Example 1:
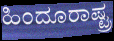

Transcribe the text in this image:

ಹಿಂದೂರಾಷ್ಟ್ರ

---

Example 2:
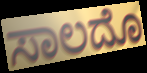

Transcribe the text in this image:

ಸಾಲದೊ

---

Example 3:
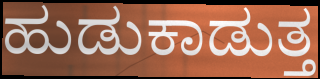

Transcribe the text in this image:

ಹುಡುಕಾಡುತ್ತ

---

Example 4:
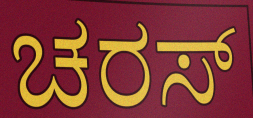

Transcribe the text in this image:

ಚರಸ್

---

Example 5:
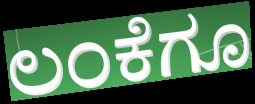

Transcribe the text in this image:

ಲಂಕೆಗೂ